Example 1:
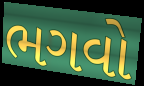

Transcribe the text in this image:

ભગવો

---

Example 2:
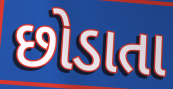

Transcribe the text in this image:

છોડાતા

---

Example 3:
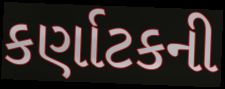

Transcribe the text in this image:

કર્ણાટકની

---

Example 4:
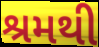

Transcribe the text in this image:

શ્રમથી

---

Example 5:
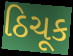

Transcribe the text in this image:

ઠિચૂક